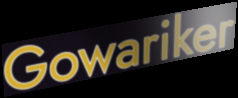
Gowariker